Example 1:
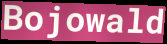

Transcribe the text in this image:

Bojowald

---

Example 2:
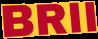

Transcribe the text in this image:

BRII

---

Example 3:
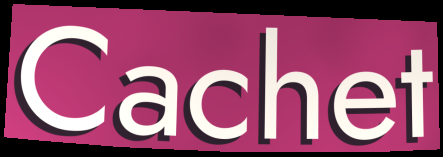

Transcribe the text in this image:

Cachet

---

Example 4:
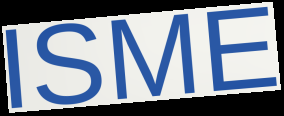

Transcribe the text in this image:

ISME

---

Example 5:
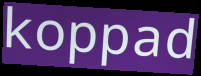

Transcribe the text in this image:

koppad